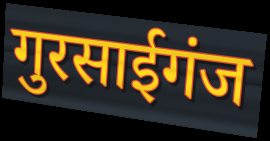
गुरसाईगंज